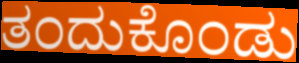
ತಂದುಕೊಂಡು